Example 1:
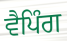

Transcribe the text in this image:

ਵੈਪਿੰਗ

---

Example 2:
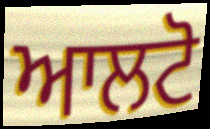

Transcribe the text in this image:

ਆਲਟੋ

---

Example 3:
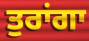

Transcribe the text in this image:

ਤੁਰਾਂਗਾ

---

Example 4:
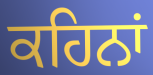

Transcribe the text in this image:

ਕਹਿਨਾਂ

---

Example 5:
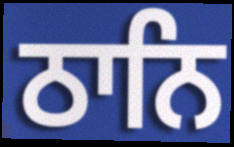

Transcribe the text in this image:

ਠਾਨਿ